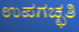
ಉಪಗಚ್ಛತಿ